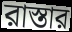
রাস্তার